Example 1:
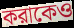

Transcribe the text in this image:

করাকেও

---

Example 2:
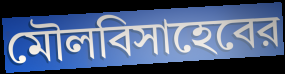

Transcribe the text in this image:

মৌলবিসাহেবের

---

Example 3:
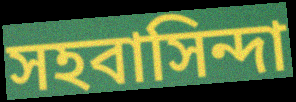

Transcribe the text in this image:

সহবাসিন্দা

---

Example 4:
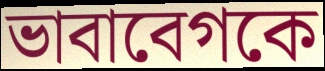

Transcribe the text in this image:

ভাবাবেগকে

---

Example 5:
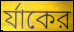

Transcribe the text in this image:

র্যাকের